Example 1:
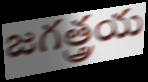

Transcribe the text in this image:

జగత్త్రయ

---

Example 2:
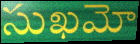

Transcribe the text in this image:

సుఖమో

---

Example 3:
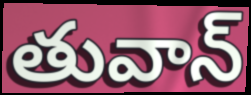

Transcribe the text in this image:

తువాన్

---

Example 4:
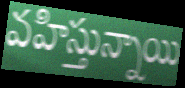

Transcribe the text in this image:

వహిస్తున్నాయి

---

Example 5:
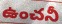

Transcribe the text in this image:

ఉంచనీ